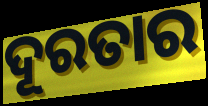
ଦୂରତାର